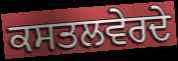
ਕਸਤਲਵੇਰਦੇ